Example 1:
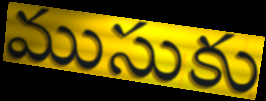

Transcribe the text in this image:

ముసుకు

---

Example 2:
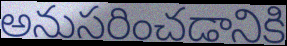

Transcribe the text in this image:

అనుసరించడానికి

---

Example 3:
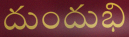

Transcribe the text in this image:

దుందుభి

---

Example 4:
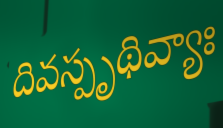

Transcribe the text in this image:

దివస్పృథివ్యాః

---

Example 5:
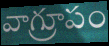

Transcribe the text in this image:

వాగ్రూపం